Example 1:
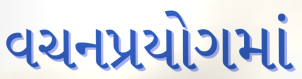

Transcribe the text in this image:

વચનપ્રયોગમાં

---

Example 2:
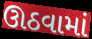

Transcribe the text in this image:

ઊઠવામાં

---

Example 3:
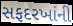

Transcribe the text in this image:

સફદરખાંની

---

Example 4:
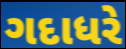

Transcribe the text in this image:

ગદાધરે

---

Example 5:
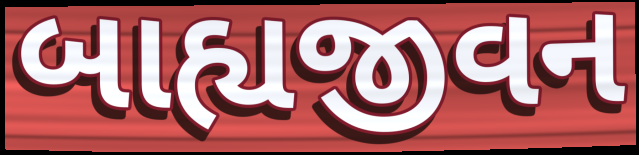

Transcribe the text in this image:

બાહ્યજીવન